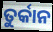
ତୁର୍କାନ